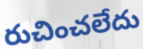
రుచించలేదు